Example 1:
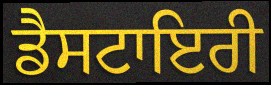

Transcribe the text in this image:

ਡੈਸਟਾਇਰੀ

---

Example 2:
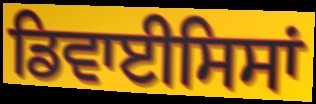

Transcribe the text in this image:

ਡਿਵਾਈਸਿਸਾਂ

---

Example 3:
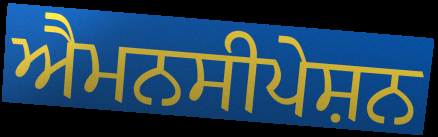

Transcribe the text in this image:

ਐਮਨਸੀਪੇਸ਼ਨ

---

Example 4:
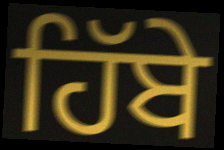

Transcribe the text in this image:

ਹਿੱਬੇ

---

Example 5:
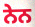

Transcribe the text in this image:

ਨੇਨ